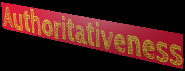
Authoritativeness